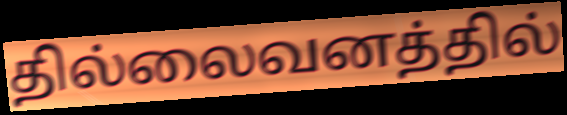
தில்லைவனத்தில்